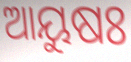
ଆୟୁଷଃ